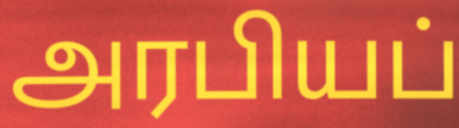
அரபியப்